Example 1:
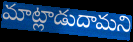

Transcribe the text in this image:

మాట్లాడుదామని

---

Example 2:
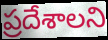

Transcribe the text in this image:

ప్రదేశాలని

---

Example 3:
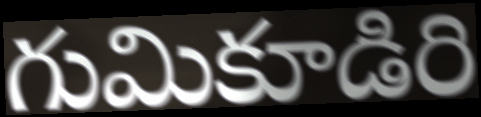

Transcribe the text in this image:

గుమికూడిరి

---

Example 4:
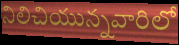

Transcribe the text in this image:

నిలిచియున్నవారిలో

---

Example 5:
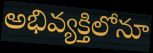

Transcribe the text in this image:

అభివ్యక్తిలోనూ